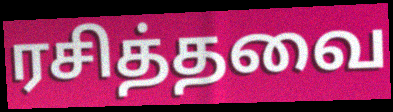
ரசித்தவை